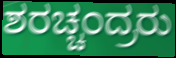
ಶರಚ್ಚಂದ್ರರು